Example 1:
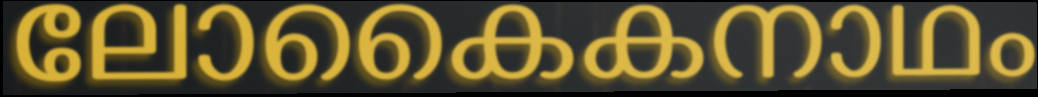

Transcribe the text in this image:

ലോകൈകനാഥം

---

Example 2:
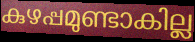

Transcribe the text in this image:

കുഴപ്പമുണ്ടാകില്ല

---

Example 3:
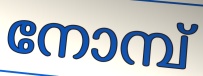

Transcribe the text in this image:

നോമ്പ്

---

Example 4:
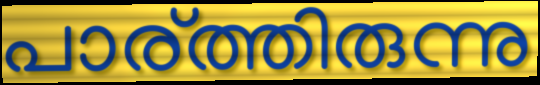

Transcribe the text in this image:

പാര്ത്തിരുന്നു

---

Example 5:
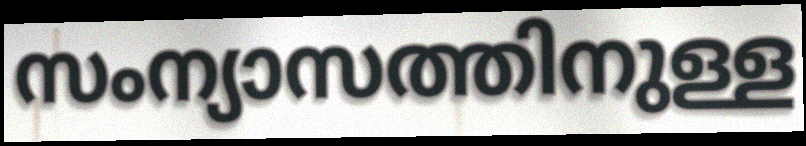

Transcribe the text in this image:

സംന്യാസത്തിനുള്ള